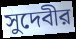
সুদেবীর